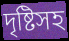
দৃষ্টিসহ